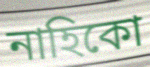
নাহিকো